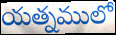
యత్నములో